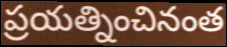
ప్రయత్నించినంత